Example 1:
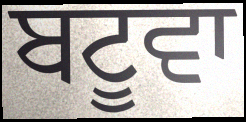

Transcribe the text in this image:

ਬਟੂਵਾ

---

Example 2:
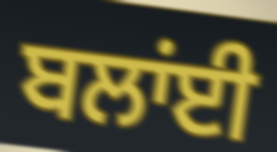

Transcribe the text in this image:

ਬਲਾਂਈ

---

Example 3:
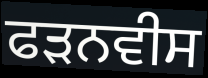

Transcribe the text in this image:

ਫੜਨਵੀਸ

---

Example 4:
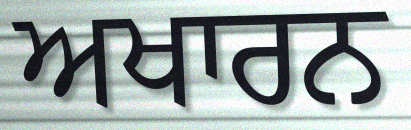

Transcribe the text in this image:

ਅਖਾਰਨ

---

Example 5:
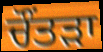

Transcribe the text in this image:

ਚੌਂਤੜਾ